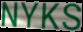
NYKS